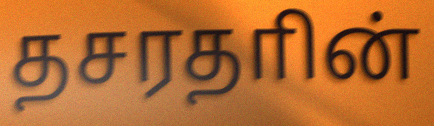
தசரதரின்